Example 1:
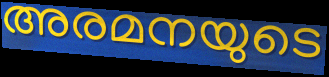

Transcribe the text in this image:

അരമനയുടെ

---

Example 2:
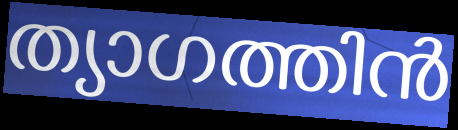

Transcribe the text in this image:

ത്യാഗത്തിൻ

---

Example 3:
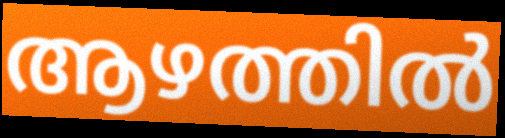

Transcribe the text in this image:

ആഴത്തിൽ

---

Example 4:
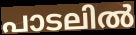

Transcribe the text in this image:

പാടലിൽ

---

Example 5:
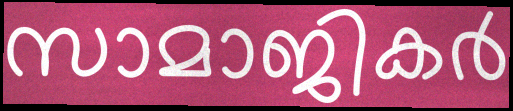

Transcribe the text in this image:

സാമാജികർ